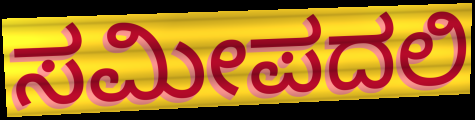
ಸಮೀಪದಲಿ